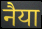
नैया